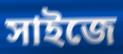
সাইজে